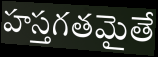
హస్తగతమైతే